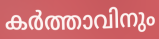
കർത്താവിനും